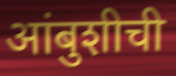
आंबुशीची